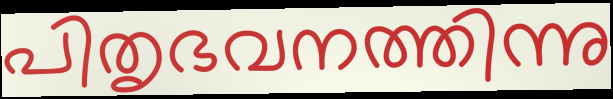
പിതൃഭവനത്തിന്നു